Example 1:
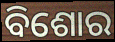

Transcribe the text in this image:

ବିଶୋର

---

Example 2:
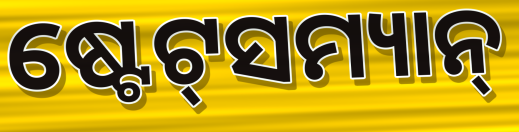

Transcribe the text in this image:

ଷ୍ଟେଟ୍‌ସମ୍ୟାନ୍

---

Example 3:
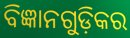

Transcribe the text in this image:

ବିଜ୍ଞାନଗୁଡ଼ିକର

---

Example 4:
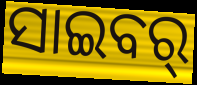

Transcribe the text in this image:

ସାଇବର୍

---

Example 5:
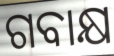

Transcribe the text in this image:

ଗବାକ୍ଷ